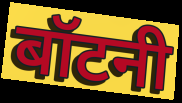
बॉटनी